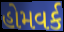
હોમવર્ક